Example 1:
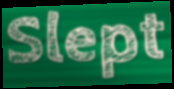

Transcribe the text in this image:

Slept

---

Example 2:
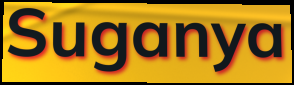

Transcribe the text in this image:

Suganya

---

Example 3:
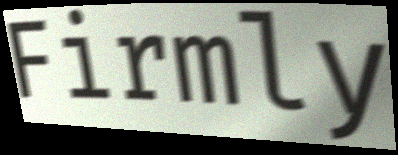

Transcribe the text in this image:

Firmly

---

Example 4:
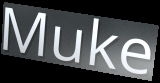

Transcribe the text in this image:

Muke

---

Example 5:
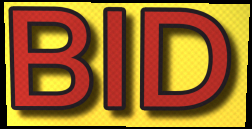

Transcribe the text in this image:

BID